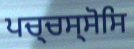
ਪਚ੍ਚਸ੍ਸੋਸਿ